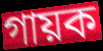
গায়ক